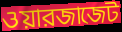
ওয়ারজাজেট